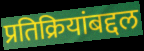
प्रतिक्रियांबद्दल